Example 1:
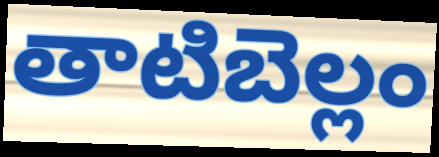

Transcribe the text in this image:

తాటిబెల్లం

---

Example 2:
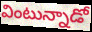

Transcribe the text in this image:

వింటున్నాడో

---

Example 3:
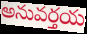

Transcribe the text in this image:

అనువర్తయ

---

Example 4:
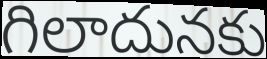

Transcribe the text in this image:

గిలాదునకు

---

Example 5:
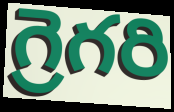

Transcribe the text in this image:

గ్రెగరి